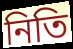
নিতি